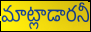
మాట్లాడారనీ